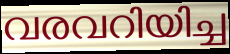
വരവറിയിച്ച